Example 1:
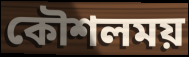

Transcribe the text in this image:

কৌশলময়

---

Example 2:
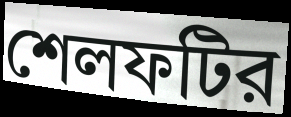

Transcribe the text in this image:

শেলফটির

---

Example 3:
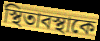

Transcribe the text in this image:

স্থিতাবস্থাকে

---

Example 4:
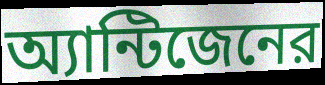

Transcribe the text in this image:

অ্যান্টিজেনের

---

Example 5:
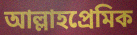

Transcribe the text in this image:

আল্লাহপ্রেমিক